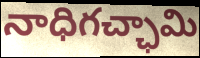
నాధిగచ్ఛామి